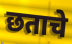
छताचे